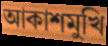
আকাশমুখি